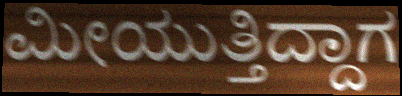
ಮೀಯುತ್ತಿದ್ದಾಗ